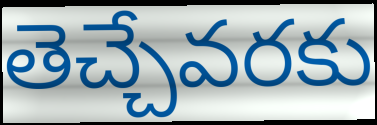
తెచ్చేవరకు